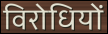
विरोधियों